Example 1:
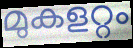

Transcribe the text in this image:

മുകളറ്റം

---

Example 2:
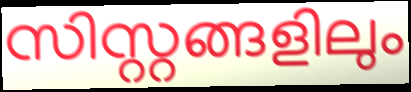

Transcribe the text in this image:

സിസ്റ്റങ്ങളിലും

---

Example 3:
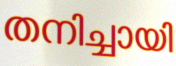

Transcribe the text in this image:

തനിച്ചായി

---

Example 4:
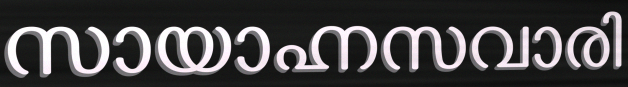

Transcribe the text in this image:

സായാഹ്നസവാരി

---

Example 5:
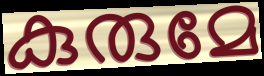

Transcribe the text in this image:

കുരുമേ